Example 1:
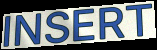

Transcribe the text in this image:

INSERT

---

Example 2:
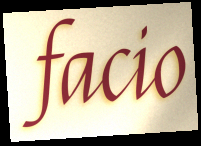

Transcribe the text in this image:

facio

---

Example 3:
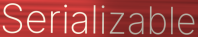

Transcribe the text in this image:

Serializable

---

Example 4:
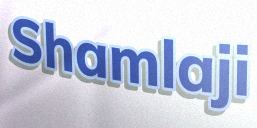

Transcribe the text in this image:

Shamlaji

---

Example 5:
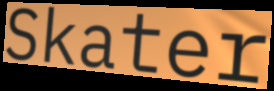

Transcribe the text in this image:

Skater